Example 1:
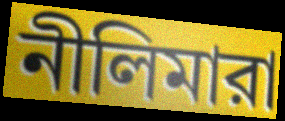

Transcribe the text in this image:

নীলিমারা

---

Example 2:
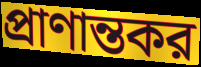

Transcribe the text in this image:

প্রাণান্তকর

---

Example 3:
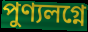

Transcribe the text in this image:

পুণ্যলগ্নে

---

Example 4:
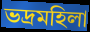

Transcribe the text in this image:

ভদ্রমহিলা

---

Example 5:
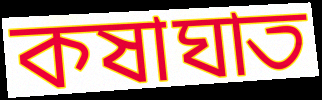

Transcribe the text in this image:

কষাঘাত